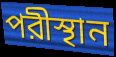
পরীস্থান